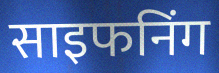
साइफनिंग